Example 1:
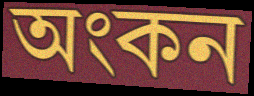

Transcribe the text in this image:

অংকন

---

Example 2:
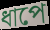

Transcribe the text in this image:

ধাপে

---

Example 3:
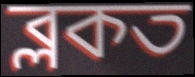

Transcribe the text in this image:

ব্লকত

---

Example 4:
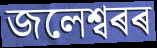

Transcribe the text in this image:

জলেশ্বৰৰ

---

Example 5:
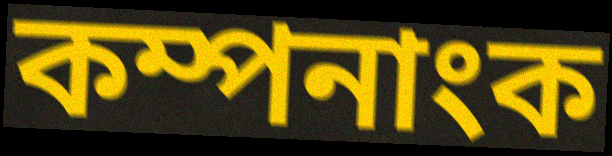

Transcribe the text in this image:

কম্পনাংক